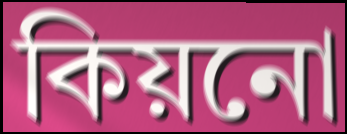
কিয়নো